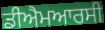
ਡੀਐਮਆਰਸੀ